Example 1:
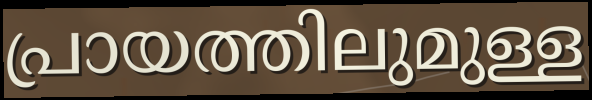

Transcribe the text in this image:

പ്രായത്തിലുമുള്ള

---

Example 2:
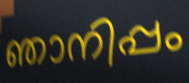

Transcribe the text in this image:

ഞാനിപ്പം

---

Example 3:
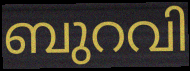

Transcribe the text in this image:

ബുറവി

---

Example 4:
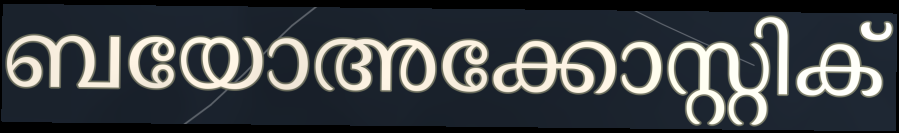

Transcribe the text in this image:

ബയോഅക്കോസ്റ്റിക്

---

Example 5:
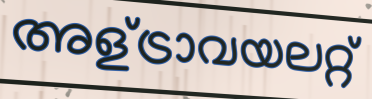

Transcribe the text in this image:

അള്ട്രാവയലറ്റ്